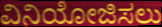
ವಿನಿಯೋಜಿಸಲು